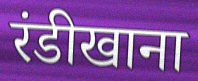
रंडीखाना